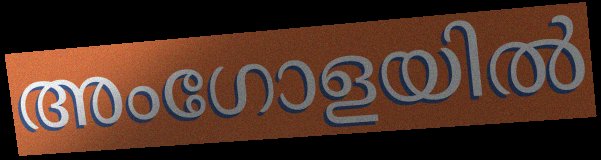
അംഗോളയിൽ